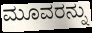
ಮೂವರನ್ನು